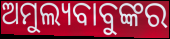
ଅମୁଲ୍ୟବାବୁଙ୍କର